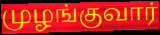
முழங்குவார்